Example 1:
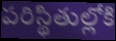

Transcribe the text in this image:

పరిస్థితుల్లోకి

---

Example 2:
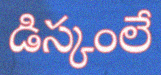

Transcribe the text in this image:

డిస్కంలే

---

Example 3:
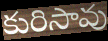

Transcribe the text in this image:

కురిసావు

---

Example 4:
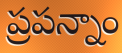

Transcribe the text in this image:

ప్రపన్నాం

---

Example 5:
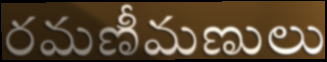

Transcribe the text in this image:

రమణీమణులు